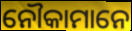
ନୌକାମାନେ